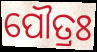
ପୌତ୍ରଃ